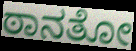
ಠಾನತೋ